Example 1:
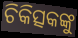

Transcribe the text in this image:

ଚିକିତ୍ସକଙ୍କୁ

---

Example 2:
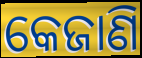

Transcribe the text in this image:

କେଜାଣି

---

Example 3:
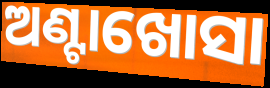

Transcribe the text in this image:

ଅଣ୍ଟାଖୋସା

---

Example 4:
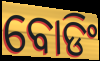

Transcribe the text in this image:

ବୋଡିଂ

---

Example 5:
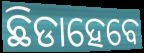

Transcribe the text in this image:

ଛିଡାହେବେ